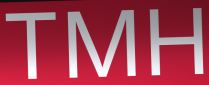
TMH